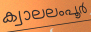
ക്വാലലംപൂർ